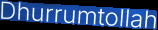
Dhurrumtollah